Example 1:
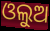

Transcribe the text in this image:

ଓଲୁଅ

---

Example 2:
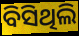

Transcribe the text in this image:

ବିସିଥିଲି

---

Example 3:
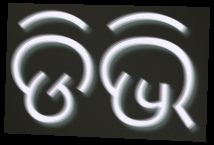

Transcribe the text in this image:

ଡିଭି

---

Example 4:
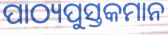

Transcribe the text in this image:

ପାଠ୍ୟପୁସ୍ତକମାନ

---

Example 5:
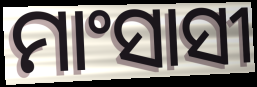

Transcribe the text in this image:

ମାଂସାସୀ